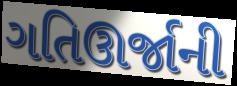
ગતિઊર્જાની